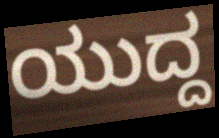
ಯುದ್ದ